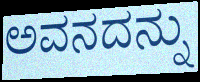
ಅವನದನ್ನು